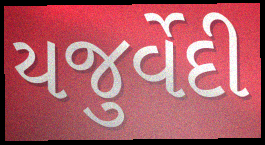
યજુર્વેદી